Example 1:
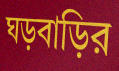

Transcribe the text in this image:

ঘড়বাড়ির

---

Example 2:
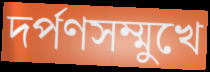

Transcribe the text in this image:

দর্পণসম্মুখে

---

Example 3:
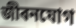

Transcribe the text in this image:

জীবনযোগ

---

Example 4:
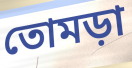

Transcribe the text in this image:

তোমড়া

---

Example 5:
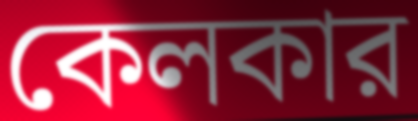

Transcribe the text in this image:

কেলকার